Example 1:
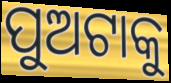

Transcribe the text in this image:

ପୁଅଟାକୁ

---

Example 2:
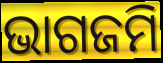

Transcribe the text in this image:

ଭାଗଜମି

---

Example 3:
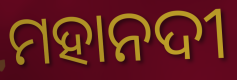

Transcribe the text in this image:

ମହାନଦୀ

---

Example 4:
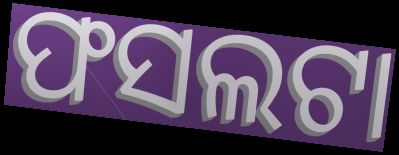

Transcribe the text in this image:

ଫସଲଟା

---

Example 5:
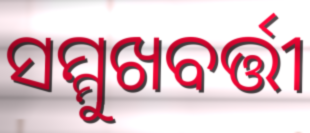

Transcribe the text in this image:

ସମ୍ମୁଖବର୍ତ୍ତୀ